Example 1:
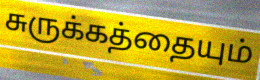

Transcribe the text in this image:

சுருக்கத்தையும்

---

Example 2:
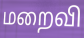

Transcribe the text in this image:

மறைவி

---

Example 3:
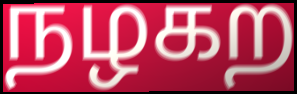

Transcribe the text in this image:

நழகற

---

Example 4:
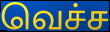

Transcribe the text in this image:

வெச்ச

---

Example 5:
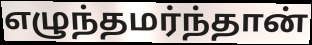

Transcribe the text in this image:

எழுந்தமர்ந்தான்